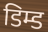
डिम्ड